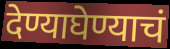
देण्याघेण्याचं